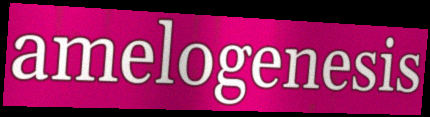
amelogenesis